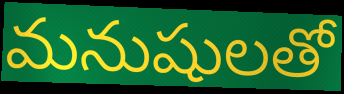
మనుషులతో